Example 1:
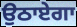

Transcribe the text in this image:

ਉਠਾਏਗਾ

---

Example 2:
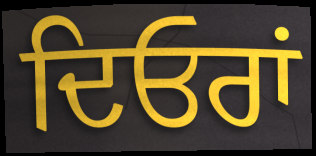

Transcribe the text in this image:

ਦਿਓਰਾਂ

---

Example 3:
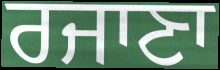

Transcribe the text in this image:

ਰਜਾਣਾ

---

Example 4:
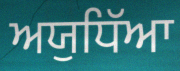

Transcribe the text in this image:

ਅਯੁਧਿੱਆ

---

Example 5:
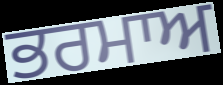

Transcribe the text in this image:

ਭਰਮਾਅ